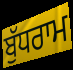
ਬੁੱਧਰਾਮ